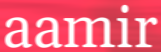
aamir